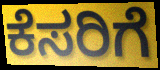
ಕೆಸರಿಗೆ